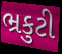
ભ્રકુટી